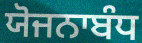
ਯੋਜਨਾਬੰਧ